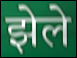
झेले